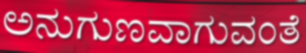
ಅನುಗುಣವಾಗುವಂತೆ